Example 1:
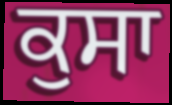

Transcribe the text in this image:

ਕੁਸਾ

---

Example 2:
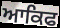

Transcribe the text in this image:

ਆਕਿਫ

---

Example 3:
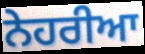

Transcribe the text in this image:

ਨੇਹਰੀਆ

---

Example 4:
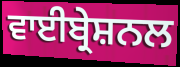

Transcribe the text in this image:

ਵਾਈਬ੍ਰੇਸ਼ਨਲ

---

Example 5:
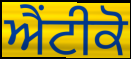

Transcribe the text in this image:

ਐਂਟੀਕੋ